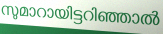
സുമാറായിട്ടറിഞ്ഞാൽ